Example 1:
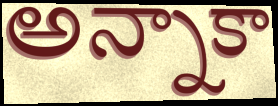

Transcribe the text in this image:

అన్నాకా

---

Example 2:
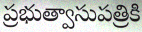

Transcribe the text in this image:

ప్రభుత్వాసుపత్రికి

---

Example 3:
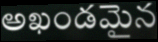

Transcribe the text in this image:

అఖండమైన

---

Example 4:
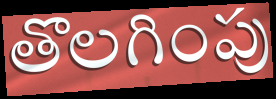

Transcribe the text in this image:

తొలగింపు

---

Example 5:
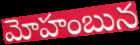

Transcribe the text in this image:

మోహంబున